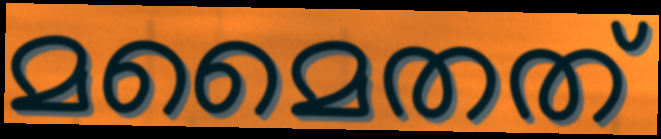
മമൈതത്